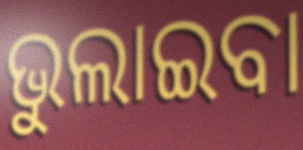
ଭୁଲାଇବା